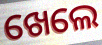
ଖେଲେ